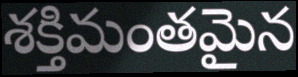
శక్తిమంతమైన